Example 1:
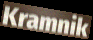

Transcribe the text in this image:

Kramnik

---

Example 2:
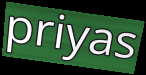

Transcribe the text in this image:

priyas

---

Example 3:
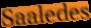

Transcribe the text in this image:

Saaledes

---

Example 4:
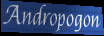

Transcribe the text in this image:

Andropogon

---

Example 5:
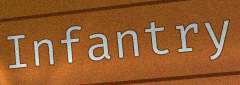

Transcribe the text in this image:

Infantry